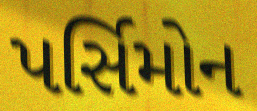
પર્સિમોન